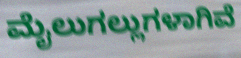
ಮೈಲುಗಲ್ಲುಗಳಾಗಿವೆ